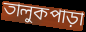
তালুকপাড়া